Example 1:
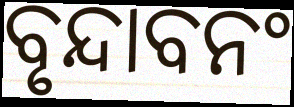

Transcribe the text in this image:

ବୃନ୍ଦାବନଂ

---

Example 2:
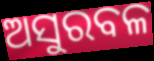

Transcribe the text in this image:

ଅସୁରବଳ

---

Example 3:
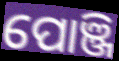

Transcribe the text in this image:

ପୋଞ୍ଜି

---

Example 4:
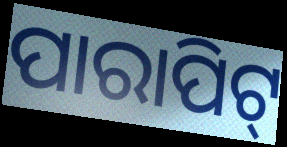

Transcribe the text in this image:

ପାରାପିଟ୍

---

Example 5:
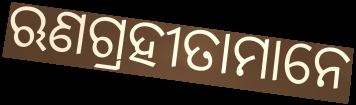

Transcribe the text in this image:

ଋଣଗ୍ରହୀତାମାନେ